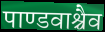
पाण्डवाश्चैव